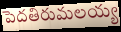
పెదతిరుమలయ్య